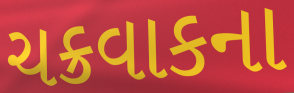
ચક્રવાકના